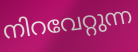
നിറവേറ്റുന്ന